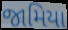
જામિયા